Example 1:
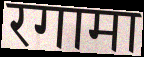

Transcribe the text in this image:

रगामा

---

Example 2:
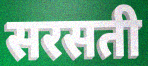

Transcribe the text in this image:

सरसती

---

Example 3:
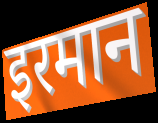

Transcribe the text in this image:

इरमान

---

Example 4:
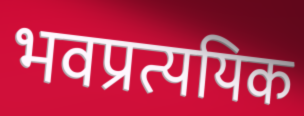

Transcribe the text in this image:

भवप्रत्ययिक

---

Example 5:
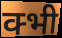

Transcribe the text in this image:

क्भी